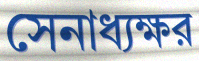
সেনাধ্যক্ষর